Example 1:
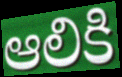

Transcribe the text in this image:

ఆలికి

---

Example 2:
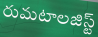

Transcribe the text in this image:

రుమటాలజిస్ట్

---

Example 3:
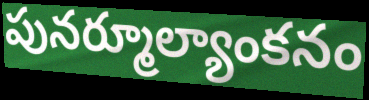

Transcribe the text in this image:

పునర్మూల్యాంకనం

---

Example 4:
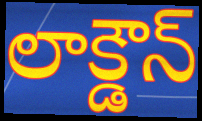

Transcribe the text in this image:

లాక్డౌన్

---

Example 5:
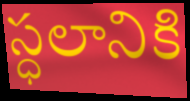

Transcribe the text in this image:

స్ధలానికి